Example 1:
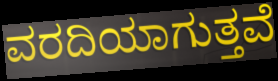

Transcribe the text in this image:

ವರದಿಯಾಗುತ್ತವೆ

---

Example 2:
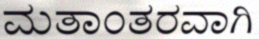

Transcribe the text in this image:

ಮತಾಂತರವಾಗಿ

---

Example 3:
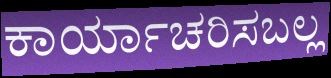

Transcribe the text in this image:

ಕಾರ್ಯಾಚರಿಸಬಲ್ಲ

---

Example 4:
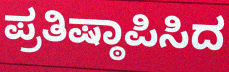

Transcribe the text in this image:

ಪ್ರತಿಷ್ಠಾಪಿಸಿದ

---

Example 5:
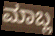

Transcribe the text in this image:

ಮಾಬ್ಲ